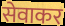
सेवाकर